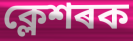
ক্লেশৰক